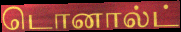
டொனால்ட்